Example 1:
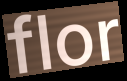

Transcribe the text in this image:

flor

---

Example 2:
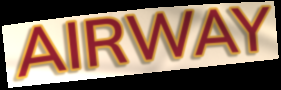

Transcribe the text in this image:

AIRWAY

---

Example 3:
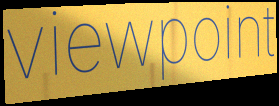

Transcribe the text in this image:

viewpoint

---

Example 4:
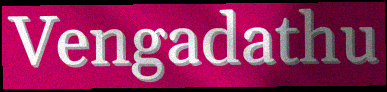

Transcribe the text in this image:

Vengadathu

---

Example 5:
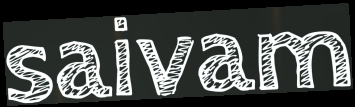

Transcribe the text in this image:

saivam